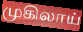
முகிலாய்